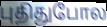
புதிதுபோல